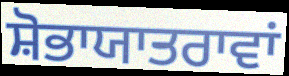
ਸ਼ੋਭਾਯਾਤਰਾਵਾਂ